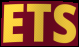
ETS